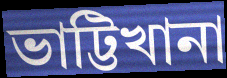
ভাট্টিখানা